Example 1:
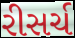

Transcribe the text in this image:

રીસર્ચ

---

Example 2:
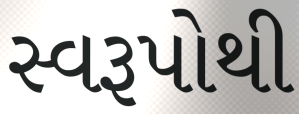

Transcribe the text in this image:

સ્વરૂપોથી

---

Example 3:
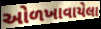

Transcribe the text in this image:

ઓળખાવાયેલા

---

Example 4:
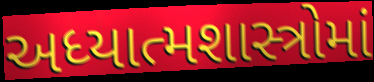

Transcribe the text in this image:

અધ્યાત્મશાસ્ત્રોમાં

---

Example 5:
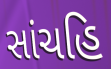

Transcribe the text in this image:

સાંચહિ